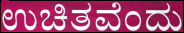
ಉಚಿತವೆಂದು